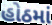
હોઠમાં